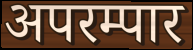
अपरम्पार